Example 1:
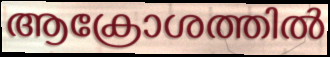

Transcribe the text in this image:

ആക്രോശത്തിൽ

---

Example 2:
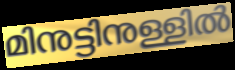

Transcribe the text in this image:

മിനുട്ടിനുള്ളിൽ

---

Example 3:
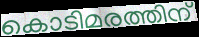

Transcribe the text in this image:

കൊടിമരത്തിന്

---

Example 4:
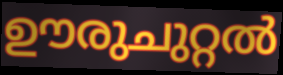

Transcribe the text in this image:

ഊരുചുറ്റൽ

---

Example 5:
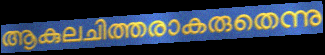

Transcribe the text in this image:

ആകുലചിത്തരാകരുതെന്നു